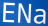
ENa